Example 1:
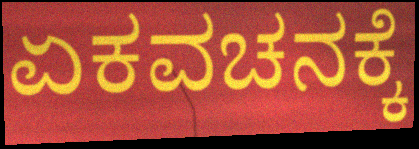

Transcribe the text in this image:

ಏಕವಚನಕ್ಕೆ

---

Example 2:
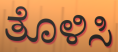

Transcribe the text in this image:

ತೊಳಿಸಿ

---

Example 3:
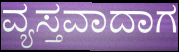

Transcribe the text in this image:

ವ್ಯಸ್ತವಾದಾಗ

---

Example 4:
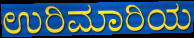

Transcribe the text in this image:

ಉರಿಮಾರಿಯ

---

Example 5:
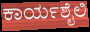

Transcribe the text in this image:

ಕಾರ್ಯಶೈಲಿ